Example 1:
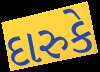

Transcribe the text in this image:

દારુકે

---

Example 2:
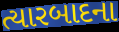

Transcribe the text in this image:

ત્યારબાદના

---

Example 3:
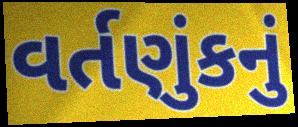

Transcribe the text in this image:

વર્તણુંકનું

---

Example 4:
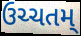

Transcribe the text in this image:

ઉચ્ચતમ્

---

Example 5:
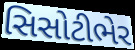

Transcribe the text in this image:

સિસોટીભેર